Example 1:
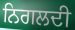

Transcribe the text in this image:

ਨਿਗਲਦੀ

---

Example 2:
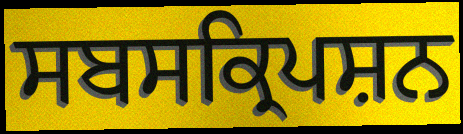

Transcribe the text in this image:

ਸਬਸਕ੍ਰਿਪਸ਼ਨ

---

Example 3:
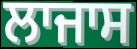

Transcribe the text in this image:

ਲਾਜਾਸ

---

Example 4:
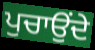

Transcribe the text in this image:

ਪੁਚਾਉਂਦੇ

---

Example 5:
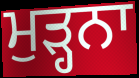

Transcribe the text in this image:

ਮੁੜ੍ਹਨਾ